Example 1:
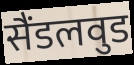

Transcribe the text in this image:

सैंडलवुड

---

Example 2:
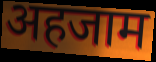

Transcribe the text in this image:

अहजाम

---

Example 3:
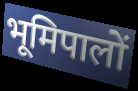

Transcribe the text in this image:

भूमिपालों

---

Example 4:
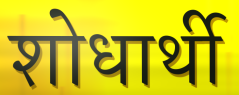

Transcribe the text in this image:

शोधार्थी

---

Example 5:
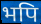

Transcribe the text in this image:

भपि